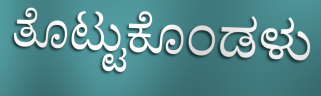
ತೊಟ್ಟುಕೊಂಡಳು